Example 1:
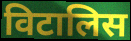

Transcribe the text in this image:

विटालिस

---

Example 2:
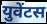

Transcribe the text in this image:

युवेंटस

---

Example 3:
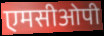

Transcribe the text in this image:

एमसीओपी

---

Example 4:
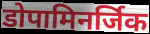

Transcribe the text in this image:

डोपामिनर्जिक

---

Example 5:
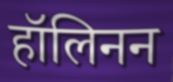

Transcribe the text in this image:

हॉलिनन